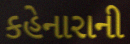
કહેનારાની